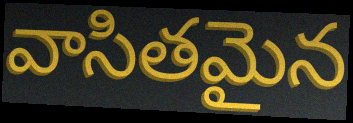
వాసితమైన